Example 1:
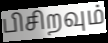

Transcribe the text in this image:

பிசிறவும்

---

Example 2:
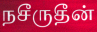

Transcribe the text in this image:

நசீருதீன்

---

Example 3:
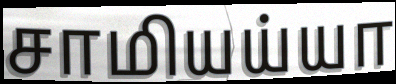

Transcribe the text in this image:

சாமியய்யா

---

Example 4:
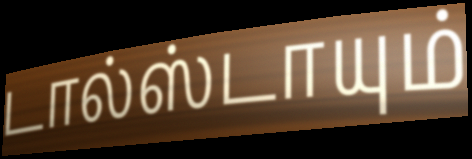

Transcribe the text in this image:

டால்ஸ்டாயும்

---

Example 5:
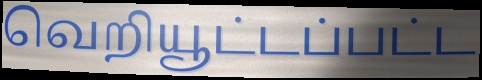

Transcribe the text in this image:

வெறியூட்டப்பட்ட